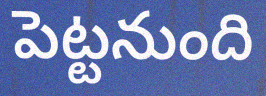
పెట్టనుంది